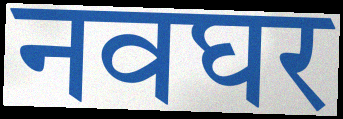
नवघर